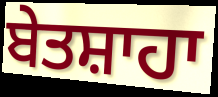
ਬੇਤਸ਼ਾਹਾ